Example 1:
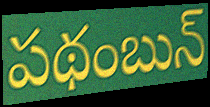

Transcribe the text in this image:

పథంబున్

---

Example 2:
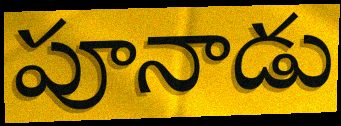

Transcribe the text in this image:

పూనాడు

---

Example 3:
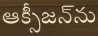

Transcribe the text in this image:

ఆక్సీజన్‌ను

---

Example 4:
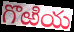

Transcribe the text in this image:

గొఱియ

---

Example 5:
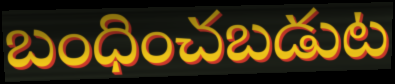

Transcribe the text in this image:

బంధించబడుట